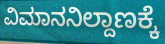
ವಿಮಾನನಿಲ್ದಾಣಕ್ಕೆ